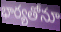
భార్యతోనూ